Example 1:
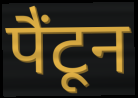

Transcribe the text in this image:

पैंटून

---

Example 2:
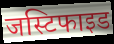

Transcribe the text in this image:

जस्टिफाइड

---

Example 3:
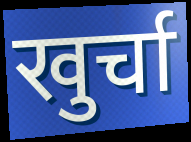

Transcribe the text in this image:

खुर्चा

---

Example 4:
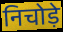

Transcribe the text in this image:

निचोड़े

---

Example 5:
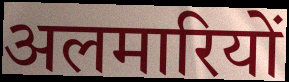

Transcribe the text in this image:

अलमारियों